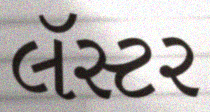
લૅસ્ટર